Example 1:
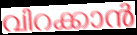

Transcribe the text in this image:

വിറക്കാൻ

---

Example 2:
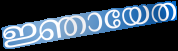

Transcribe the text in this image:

ജ്ഞായേത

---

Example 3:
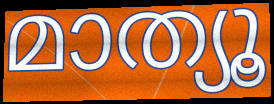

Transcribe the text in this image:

മാത്യൂ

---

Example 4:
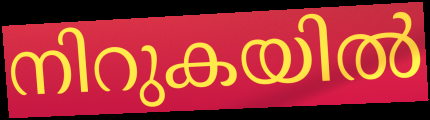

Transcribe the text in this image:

നിറുകയിൽ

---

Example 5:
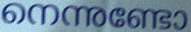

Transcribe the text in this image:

നെന്നുണ്ടോ